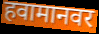
हवामानवर